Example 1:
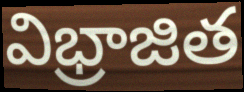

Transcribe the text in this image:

విభ్రాజిత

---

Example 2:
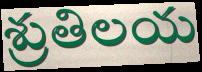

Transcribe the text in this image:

శ్రుతిలయ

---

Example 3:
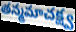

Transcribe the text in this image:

తన్మమాచక్ష్వ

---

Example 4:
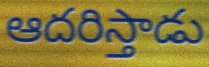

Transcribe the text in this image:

ఆదరిస్తాడు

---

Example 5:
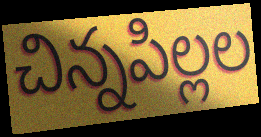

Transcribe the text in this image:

చిన్నపిల్లల